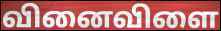
வினைவிளை